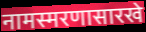
नामस्मरणासारखे